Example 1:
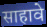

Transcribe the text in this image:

साहावे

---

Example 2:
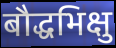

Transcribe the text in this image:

बौद्धभिक्षु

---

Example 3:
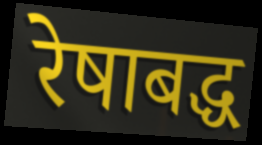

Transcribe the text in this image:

रेषाबद्ध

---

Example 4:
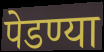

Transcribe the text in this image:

पेडण्या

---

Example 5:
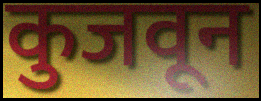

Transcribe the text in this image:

कुजवून